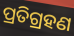
ପ୍ରତିଗ୍ରହଣ